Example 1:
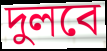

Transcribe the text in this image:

দুলবে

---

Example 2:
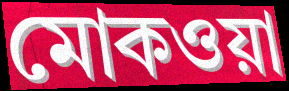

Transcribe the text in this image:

মোকওয়া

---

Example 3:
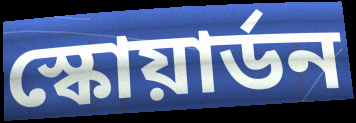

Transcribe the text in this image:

স্কোয়ার্ডন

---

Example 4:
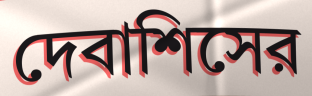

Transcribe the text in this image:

দেবাশিসের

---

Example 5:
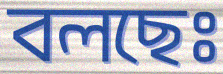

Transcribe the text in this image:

বলছেঃ